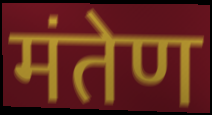
मंतेण